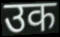
उक